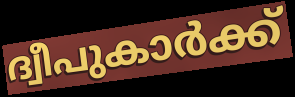
ദ്വീപുകാർക്ക്